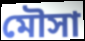
মৌসা